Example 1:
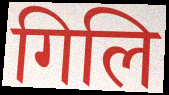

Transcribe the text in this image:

गिलि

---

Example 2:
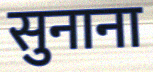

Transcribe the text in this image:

सुनाना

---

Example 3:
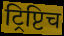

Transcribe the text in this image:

ट्रिप्टिच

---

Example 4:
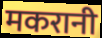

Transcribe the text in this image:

मकरानी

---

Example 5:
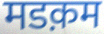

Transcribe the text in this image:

मडक़म